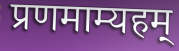
प्रणमाम्यहम्